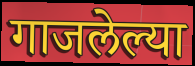
गाजलेल्या